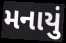
મનાયું